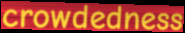
crowdedness